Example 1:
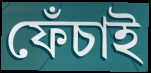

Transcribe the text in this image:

ফেঁচাই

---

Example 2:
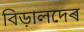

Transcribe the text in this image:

বিড়ালদেৰ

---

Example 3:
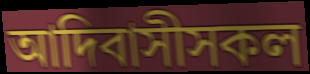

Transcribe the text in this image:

আদিবাসীসকল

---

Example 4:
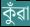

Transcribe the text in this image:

কুঁৱা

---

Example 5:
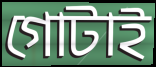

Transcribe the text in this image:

গোটাই